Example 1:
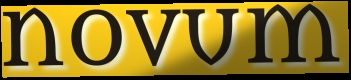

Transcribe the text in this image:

novum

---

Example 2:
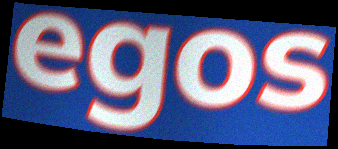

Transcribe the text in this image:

egos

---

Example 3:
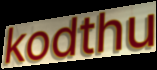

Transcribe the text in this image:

kodthu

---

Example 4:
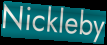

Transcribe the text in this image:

Nickleby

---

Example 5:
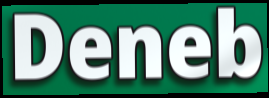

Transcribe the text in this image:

Deneb